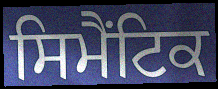
ਸਿਮੈਂਟਿਕ